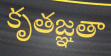
కృతజ్ఞతా